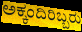
ಅಕ್ಕಂದಿರಿಬ್ಬರು